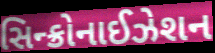
સિન્ક્રોનાઈઝેશન